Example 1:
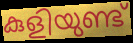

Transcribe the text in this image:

കുളിയുണ്ട്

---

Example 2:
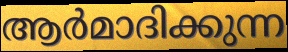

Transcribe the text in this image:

ആർമാദിക്കുന്ന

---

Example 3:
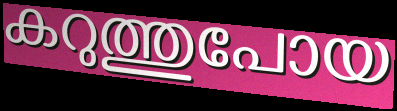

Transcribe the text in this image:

കറുത്തുപോയ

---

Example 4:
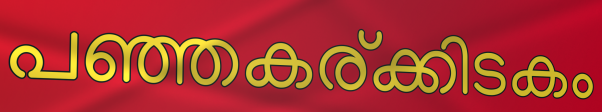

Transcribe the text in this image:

പഞ്ഞകര്ക്കിടകം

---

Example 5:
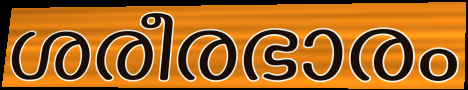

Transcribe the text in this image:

ശരീരഭാരം